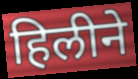
हिलीने